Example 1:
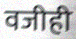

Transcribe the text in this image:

वजीही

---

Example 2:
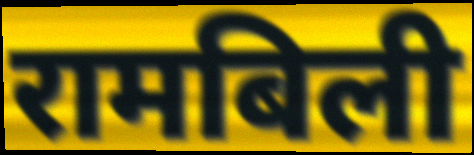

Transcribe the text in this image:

रामबिली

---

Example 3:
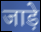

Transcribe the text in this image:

जाड़े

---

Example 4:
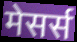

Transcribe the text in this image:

मेसर्स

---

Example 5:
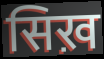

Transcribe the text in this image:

सिख़